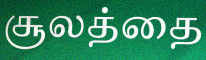
சூலத்தை